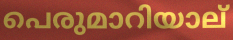
പെരുമാറിയാല്